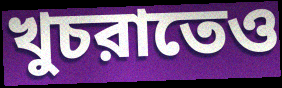
খুচরাতেও